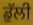
ਡੁੱਲੀ